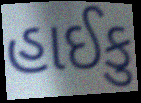
હાઈકુ